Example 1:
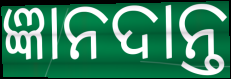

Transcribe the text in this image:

ଜ୍ଞାନଦାନ୍ତ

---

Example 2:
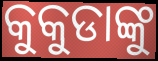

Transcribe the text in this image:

କୁକୁଡାଙ୍କୁ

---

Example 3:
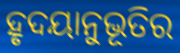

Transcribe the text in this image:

ହୃଦୟାନୁଭୂତିର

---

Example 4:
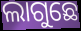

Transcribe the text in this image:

ଲାଗୁଛେ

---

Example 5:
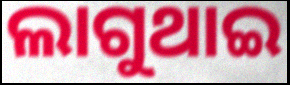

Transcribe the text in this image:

ଲାଗୁଥାଇ